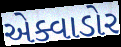
એક્વાડોર